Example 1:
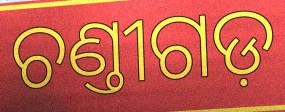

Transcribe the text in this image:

ଚଣ୍ତୀଗଡ଼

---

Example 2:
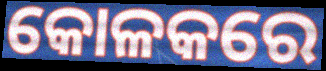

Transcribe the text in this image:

କୋଳକରେ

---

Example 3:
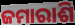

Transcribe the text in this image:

ଜମାରାଶି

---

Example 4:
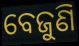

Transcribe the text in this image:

ବେଜୁଣି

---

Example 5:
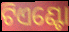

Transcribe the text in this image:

ଟିଏଣ୍ଟୋ